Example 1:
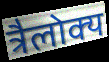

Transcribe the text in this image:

त्रैलोक्य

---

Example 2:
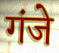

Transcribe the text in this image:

गंजे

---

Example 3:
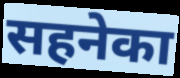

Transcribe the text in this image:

सहनेका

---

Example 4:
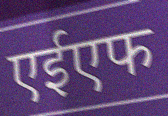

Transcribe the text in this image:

एईएफ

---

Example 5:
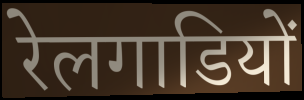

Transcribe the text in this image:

रेलगाडियों